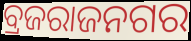
ବ୍ରଜରାଜନଗର